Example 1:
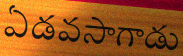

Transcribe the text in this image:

ఏడవసాగాడు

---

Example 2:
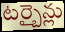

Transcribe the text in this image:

టర్బైన్లు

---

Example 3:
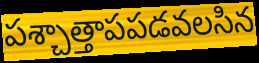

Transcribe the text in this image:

పశ్చాత్తాపపడవలసిన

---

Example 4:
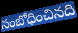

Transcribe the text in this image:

సంబోధించినది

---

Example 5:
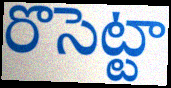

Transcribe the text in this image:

రొసెట్టా